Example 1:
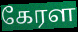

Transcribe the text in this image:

கேரள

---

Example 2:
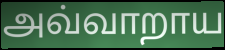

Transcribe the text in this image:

அவ்வாறாய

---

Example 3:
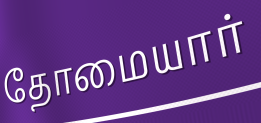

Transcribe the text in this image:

தோமையார்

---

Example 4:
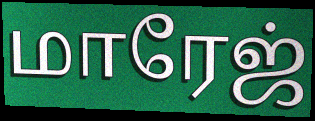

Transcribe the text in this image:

மாரேஜ்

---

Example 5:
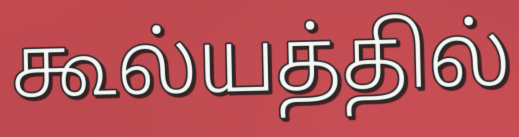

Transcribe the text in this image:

கூல்யத்தில்